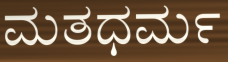
ಮತಧರ್ಮ